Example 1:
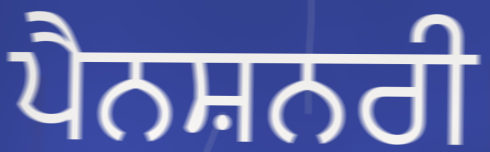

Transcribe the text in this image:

ਪੈਨਸ਼ਨਰੀ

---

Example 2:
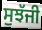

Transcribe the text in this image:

ਸੁਝੱਜੀ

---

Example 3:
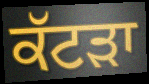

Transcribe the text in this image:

ਕੱਟੜਾ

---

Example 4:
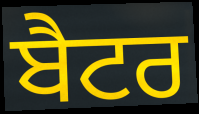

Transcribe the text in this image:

ਬੈਟਰ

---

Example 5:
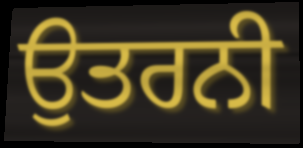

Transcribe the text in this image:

ਉਤਰਨੀ